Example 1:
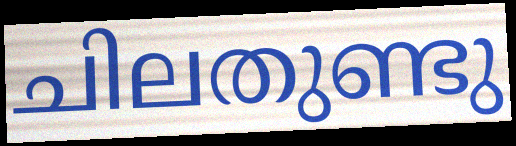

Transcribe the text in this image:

ചിലതുണ്ടു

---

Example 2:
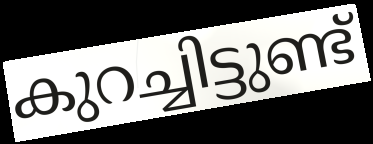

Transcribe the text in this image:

കുറച്ചിട്ടുണ്ട്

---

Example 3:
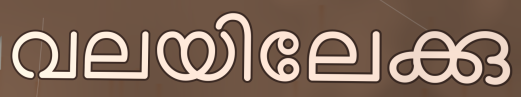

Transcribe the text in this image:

വലയിലേക്കു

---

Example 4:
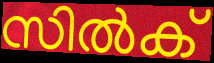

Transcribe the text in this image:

സിൽക്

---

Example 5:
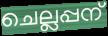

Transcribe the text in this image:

ചെല്ലപ്പന്